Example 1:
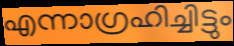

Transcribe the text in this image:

എന്നാഗ്രഹിച്ചിട്ടും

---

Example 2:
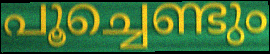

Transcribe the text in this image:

പൂച്ചെണ്ടും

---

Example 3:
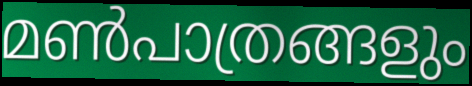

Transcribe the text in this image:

മൺപാത്രങ്ങളും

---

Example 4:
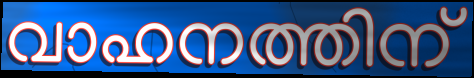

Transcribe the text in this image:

വാഹനത്തിന്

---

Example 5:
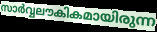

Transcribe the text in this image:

സാർവ്വലൗകികമായിരുന്ന